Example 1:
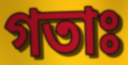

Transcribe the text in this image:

গতাঃ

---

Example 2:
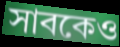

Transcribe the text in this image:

সাবকেও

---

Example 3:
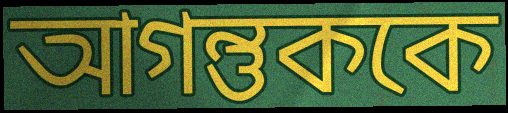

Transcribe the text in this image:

আগন্তুককে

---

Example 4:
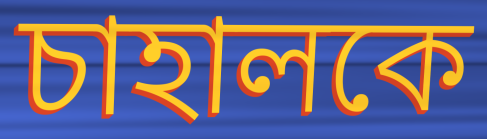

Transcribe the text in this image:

চাহালকে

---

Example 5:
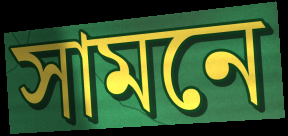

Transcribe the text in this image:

সামনে